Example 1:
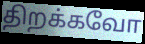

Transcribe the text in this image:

திறக்கவோ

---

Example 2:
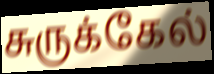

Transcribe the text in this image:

சுருக்கேல்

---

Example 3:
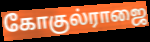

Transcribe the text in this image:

கோகுல்ராஜை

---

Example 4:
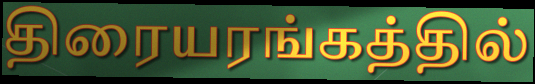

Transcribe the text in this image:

திரையரங்கத்தில்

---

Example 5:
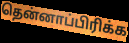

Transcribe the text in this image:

தென்னாப்பிரிக்க